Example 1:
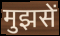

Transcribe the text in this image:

मुझसें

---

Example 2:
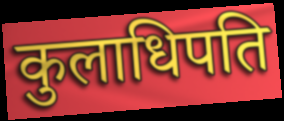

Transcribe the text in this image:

कुलाधिपति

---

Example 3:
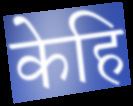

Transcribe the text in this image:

केहि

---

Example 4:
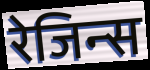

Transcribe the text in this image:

रेजिन्स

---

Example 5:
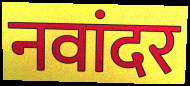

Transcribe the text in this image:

नवांदर